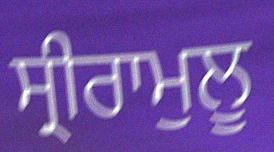
ਸ੍ਰੀਰਾਮੁਲੂ